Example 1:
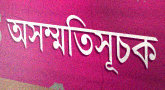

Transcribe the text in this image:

অসম্মতিসূচক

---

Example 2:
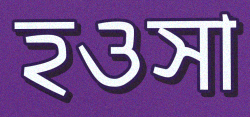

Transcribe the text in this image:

হওসা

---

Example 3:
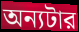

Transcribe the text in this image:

অন্যটার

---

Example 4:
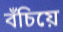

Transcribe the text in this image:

বঁচিয়ে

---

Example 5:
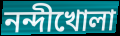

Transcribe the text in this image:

নন্দীখোলা